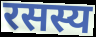
रसस्य